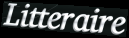
Litteraire